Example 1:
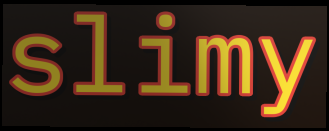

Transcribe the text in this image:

slimy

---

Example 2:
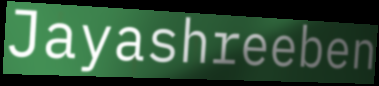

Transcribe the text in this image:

Jayashreeben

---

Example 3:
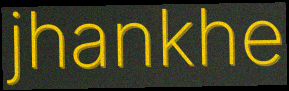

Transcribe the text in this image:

jhankhe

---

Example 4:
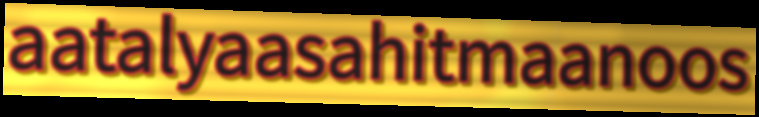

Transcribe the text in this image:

aatalyaasahitmaanoos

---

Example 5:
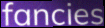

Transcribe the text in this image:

fancies